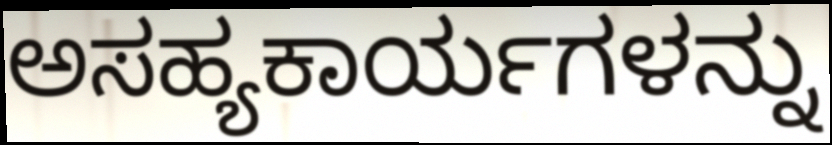
ಅಸಹ್ಯಕಾರ್ಯಗಳನ್ನು